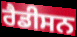
ਰੈਡੀਸਨ